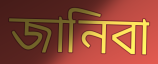
জানিবা